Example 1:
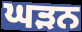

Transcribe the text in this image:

ਘੜਨ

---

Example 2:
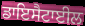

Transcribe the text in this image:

ਡਾਇਸੈਟਾਈਲ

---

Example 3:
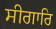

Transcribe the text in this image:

ਸੀਗਾਰਿ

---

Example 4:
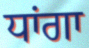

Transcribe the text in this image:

ਧਾਂਗਾ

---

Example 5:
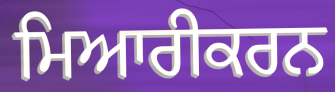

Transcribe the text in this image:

ਮਿਆਰੀਕਰਨ